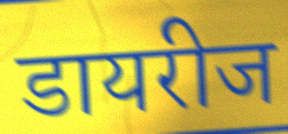
डायरीज